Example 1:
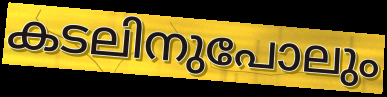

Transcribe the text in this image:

കടലിനുപോലും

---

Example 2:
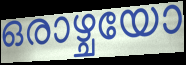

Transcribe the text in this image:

ഒരാഴ്ചയോ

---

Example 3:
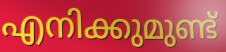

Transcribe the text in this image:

എനിക്കുമുണ്ട്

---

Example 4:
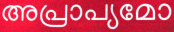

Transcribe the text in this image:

അപ്രാപ്യമോ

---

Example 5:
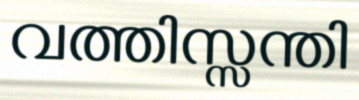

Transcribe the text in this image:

വത്തിസ്സന്തി